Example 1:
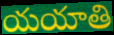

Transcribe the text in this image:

యయాతి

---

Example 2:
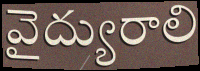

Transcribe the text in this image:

వైద్యురాలి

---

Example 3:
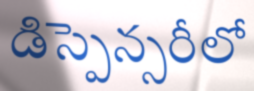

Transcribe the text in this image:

డిస్పెన్సరీలో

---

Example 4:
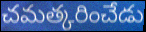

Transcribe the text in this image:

చమత్కరించేడు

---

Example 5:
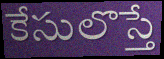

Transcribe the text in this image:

కేసులొస్తే